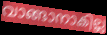
വാങ്ങാനാകില്ല